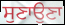
ਸੁਣਾਉਣਾ